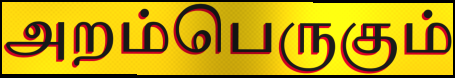
அறம்பெருகும்